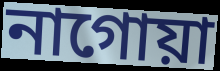
নাগোয়া